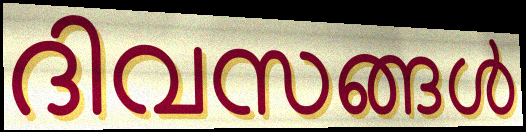
ദിവസങ്ങൾ